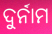
ଦୁର୍ନାମ